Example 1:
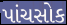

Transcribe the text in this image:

પાંચસોક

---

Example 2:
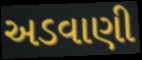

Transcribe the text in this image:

અડવાણી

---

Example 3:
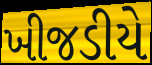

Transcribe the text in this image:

ખીજડીયે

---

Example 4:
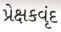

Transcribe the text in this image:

પ્રેક્ષકવૃંદ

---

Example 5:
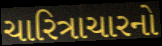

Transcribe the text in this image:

ચારિત્રાચારનો